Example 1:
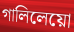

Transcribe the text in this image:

গালিলেয়ো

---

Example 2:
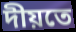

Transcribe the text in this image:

দীয়তে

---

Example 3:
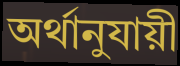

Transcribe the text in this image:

অর্থানুযায়ী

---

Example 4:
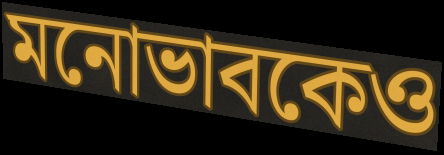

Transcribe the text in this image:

মনোভাবকেও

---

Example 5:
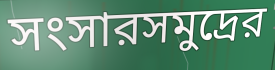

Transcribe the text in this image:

সংসারসমুদ্রের